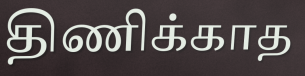
திணிக்காத